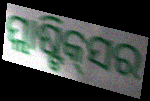
ପ୍ଲାଷ୍ଟିକ୍‌ସର